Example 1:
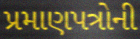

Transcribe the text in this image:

પ્રમાણપત્રોની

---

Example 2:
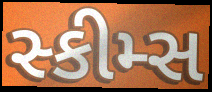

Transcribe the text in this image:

સ્કીમ્સ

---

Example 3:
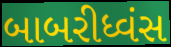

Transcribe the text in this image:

બાબરીધ્વંસ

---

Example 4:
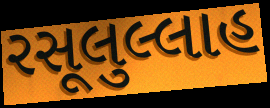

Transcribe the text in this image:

રસૂલુલ્લાહ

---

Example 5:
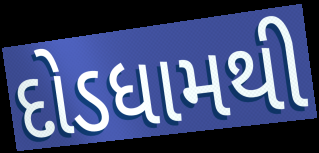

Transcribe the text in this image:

દોડધામથી